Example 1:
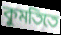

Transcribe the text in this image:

কুমতিতে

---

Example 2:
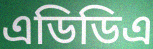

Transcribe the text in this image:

এডিডিএ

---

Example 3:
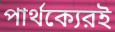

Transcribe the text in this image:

পার্থক্যেরই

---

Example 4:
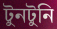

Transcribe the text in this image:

টুনটুনি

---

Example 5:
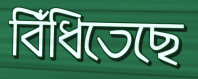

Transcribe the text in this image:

বিঁধিতেছে